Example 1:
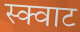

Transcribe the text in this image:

स्क्वाट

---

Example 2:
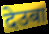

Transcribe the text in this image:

देउबा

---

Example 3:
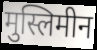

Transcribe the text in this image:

मुस्लिमीन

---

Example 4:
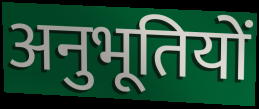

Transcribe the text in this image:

अनुभूतियों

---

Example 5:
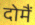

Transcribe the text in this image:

दोमैं